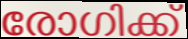
രോഗിക്ക്